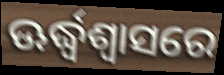
ଊର୍ଦ୍ଧ୍ୱଶ୍ୱାସରେ